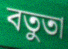
বতুতা